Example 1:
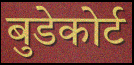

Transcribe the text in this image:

बुडेकोर्ट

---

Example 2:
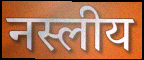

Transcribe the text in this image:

नस्लीय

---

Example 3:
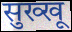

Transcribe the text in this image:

सुख्खू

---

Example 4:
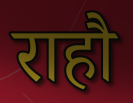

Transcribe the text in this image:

राहौ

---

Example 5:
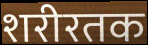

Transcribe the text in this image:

शरीरतक